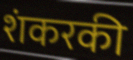
शंकरकी